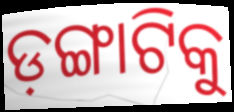
ଡ଼ଙ୍ଗାଟିକୁ